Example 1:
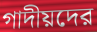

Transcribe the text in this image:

গাদীয়দের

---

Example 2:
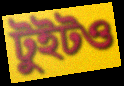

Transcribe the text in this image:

টুইটও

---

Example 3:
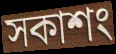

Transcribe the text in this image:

সকাশং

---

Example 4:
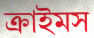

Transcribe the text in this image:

ক্রাইমস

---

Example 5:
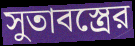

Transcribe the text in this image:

সুতাবস্ত্রের